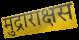
मुद्राराक्षस